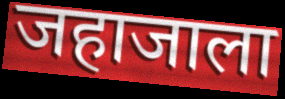
जहाजाला